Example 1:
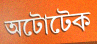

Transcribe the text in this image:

অটোটেক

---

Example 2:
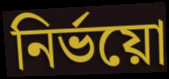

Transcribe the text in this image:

নির্ভয়ো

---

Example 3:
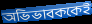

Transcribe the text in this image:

অভিভাবককেই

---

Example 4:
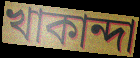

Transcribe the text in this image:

খাকান্দা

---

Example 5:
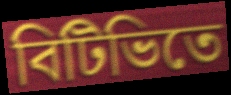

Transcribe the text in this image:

বিটিভিতে